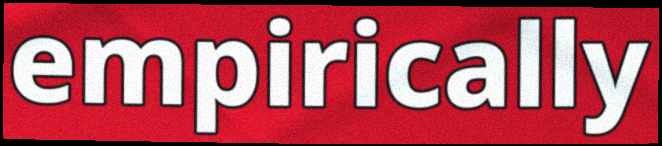
empirically